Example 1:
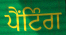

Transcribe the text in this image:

ਪੈਂਟਿੰਗ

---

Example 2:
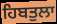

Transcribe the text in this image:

ਹਿਬਤੁਲਾ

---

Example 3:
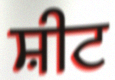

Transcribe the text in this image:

ਸ਼ੀਟ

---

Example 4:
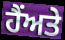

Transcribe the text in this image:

ਹੈਂਅਤੇ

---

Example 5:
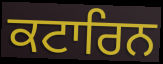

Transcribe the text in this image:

ਕਟਾਰਿਨ